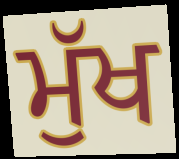
ਮੁੱਖ